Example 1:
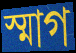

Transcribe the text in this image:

স্মাগ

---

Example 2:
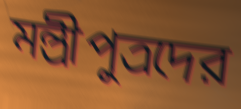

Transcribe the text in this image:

মন্ত্রীপুত্রদের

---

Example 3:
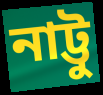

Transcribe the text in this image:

নাট্টু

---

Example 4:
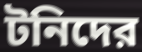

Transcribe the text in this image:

টনিদের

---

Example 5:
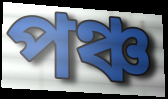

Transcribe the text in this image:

পঞ্চ